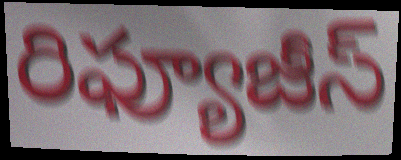
రిఫ్యూజీస్